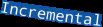
Incremental